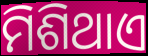
ମିଶିଥାଏ